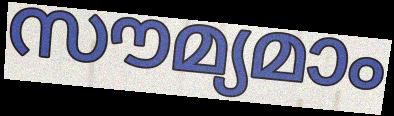
സൗമ്യമാം